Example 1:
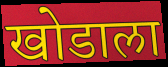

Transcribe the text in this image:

खोडाला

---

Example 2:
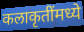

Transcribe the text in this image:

कलाकृतींमध्ये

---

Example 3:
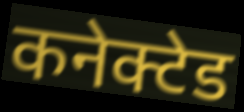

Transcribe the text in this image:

कनेक्टेड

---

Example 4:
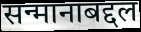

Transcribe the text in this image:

सन्मानाबद्दल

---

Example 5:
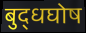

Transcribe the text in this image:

बुद्धघोष